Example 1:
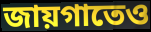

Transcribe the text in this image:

জায়গাতেও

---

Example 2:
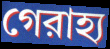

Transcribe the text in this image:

গেরাহ্য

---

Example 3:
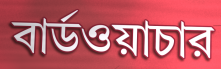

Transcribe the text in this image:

বার্ডওয়াচার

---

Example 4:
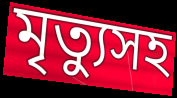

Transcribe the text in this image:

মৃত্যুসহ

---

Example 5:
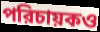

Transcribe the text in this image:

পরিচায়কও